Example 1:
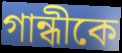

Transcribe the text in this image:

গান্ধীকে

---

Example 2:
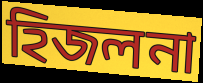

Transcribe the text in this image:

হিজলনা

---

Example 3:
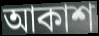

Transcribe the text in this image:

আকাশ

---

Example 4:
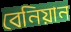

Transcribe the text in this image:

বেনিয়ান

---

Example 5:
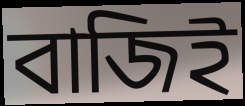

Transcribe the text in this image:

বাজিই